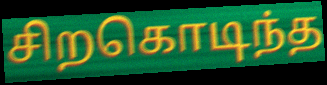
சிறகொடிந்த